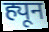
ह्यून